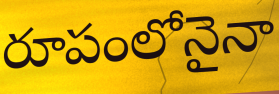
రూపంలోనైనా